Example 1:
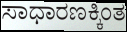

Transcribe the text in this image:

ಸಾಧಾರಣಕ್ಕಿಂತ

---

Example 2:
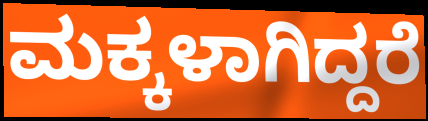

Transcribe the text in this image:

ಮಕ್ಕಳಾಗಿದ್ದರೆ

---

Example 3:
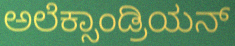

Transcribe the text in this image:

ಅಲೆಕ್ಸಾಂಡ್ರಿಯನ್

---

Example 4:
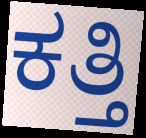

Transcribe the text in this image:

ಕತ್ತಿ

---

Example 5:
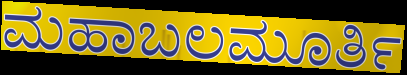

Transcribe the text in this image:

ಮಹಾಬಲಮೂರ್ತಿ